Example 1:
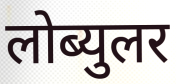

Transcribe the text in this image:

लोब्युलर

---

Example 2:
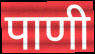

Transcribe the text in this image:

पाणी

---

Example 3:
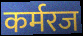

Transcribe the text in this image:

कर्मरज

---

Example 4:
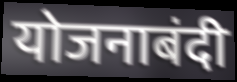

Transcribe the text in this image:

योजनाबंदी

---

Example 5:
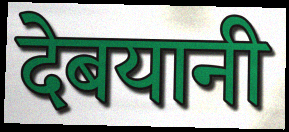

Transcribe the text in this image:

देबयानी